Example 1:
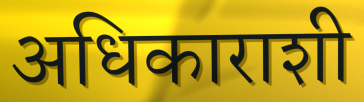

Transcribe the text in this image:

अधिकाराशी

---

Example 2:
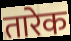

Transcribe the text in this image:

तारेक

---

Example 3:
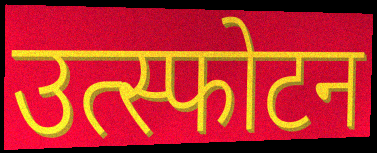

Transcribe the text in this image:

उत्स्फोटन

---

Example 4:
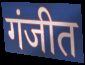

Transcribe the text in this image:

गंजीत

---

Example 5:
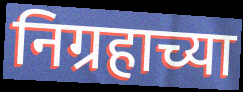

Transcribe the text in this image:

निग्रहाच्या